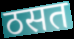
ठसत